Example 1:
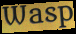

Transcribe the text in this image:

Wasp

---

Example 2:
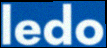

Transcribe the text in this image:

ledo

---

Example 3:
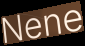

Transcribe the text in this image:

Nene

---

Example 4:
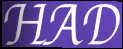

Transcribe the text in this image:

HAD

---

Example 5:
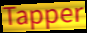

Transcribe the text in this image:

Tapper